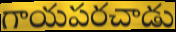
గాయపరచాడు